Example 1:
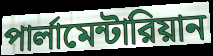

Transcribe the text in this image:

পার্লামেন্টারিয়ান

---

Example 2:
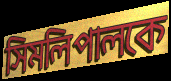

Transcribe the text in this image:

সিমলিপালকে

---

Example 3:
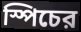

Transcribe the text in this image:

স্পিচের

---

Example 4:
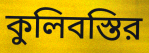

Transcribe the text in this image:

কুলিবস্তির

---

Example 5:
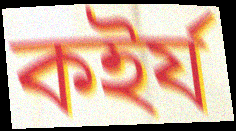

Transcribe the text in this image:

কইর্য